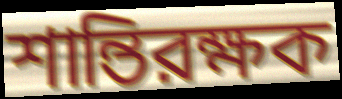
শান্তিরক্ষক